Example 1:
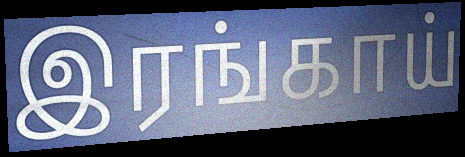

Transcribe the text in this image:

இரங்காய்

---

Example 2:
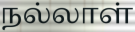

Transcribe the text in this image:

நல்லாள்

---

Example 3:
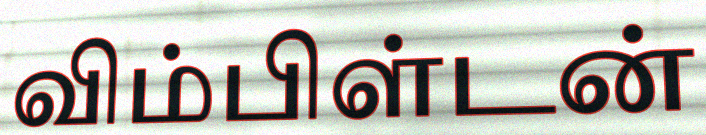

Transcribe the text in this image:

விம்பிள்டன்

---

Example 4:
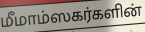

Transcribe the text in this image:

மீமாம்ஸகர்களின்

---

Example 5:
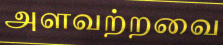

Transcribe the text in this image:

அளவற்றவை